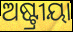
ଅଷ୍ଟ୍ରୀୟା